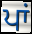
ਪਾਂ